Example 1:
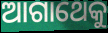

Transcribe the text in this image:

ଆଗାଥେକୁ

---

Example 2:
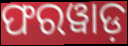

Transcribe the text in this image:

ଫରୱାଡ଼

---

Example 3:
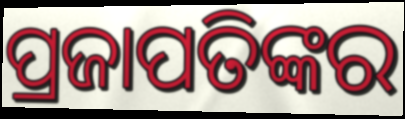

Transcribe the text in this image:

ପ୍ରଜାପତିଙ୍କର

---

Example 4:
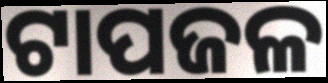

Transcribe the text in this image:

ଟାପଜଳ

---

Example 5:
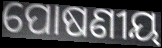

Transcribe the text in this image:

ପୋଷଣୀୟ